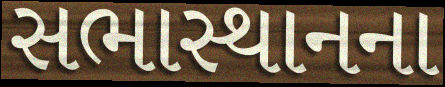
સભાસ્થાનના